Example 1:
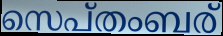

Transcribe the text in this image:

സെപ്തംബര്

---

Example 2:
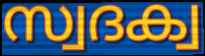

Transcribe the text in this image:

സ്വദക്വ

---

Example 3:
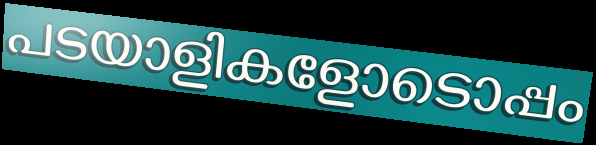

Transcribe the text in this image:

പടയാളികളോടൊപ്പം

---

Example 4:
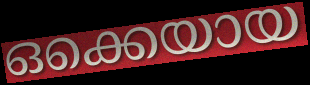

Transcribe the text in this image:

ഒക്കെയായ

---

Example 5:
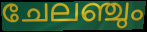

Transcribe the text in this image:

ചേലഞ്ചും